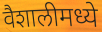
वैशालीमध्ये